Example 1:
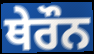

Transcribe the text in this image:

ਥੇਰੌਨ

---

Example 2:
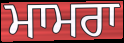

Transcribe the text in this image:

ਮਾਮਰਾ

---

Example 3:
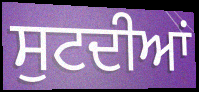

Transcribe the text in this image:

ਸੁਟਦੀਆਂ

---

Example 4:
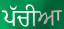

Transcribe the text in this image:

ਪੱਚੀਆ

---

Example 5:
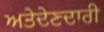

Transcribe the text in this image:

ਅਤੇਦੇਣਦਾਰੀ